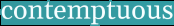
contemptuous